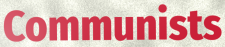
Communists